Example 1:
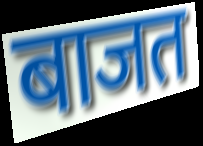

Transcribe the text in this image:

बाजत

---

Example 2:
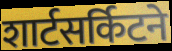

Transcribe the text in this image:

शार्टसर्किटने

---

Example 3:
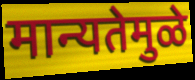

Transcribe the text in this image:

मान्यतेमुळे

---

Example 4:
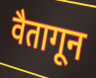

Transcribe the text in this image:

वैतागून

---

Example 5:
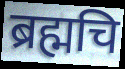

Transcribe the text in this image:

ब्रह्मचि